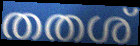
തതശ്